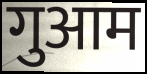
गुआम